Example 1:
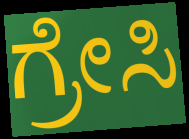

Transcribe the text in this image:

ಗ್ರೇಸಿ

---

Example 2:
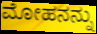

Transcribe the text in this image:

ಮೋಹನನ್ನು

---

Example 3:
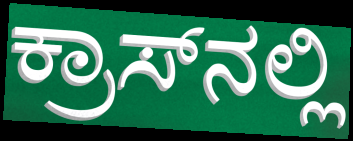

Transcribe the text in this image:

ಕ್ರಾಸ್‌ನಲ್ಲಿ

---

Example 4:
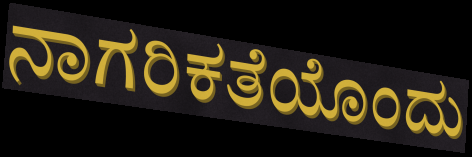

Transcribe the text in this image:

ನಾಗರಿಕತೆಯೊಂದು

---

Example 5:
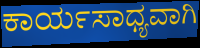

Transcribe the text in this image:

ಕಾರ್ಯಸಾಧ್ಯವಾಗಿ